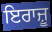
ਇਰਾਜ਼ੂ